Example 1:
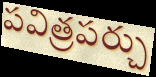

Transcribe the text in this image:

పవిత్రపర్చు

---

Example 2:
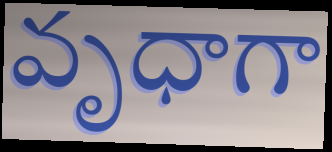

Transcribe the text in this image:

వృధాగా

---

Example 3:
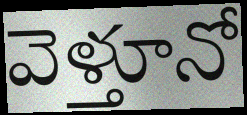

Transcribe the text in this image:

వెళ్తూనో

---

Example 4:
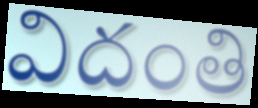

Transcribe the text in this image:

విదంతి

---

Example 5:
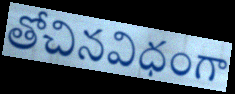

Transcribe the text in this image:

తోచినవిధంగా